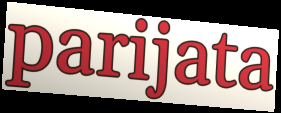
parijata